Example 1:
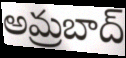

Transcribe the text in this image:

అమ్రబాద్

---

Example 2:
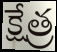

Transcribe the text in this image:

క్షేత్ర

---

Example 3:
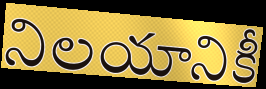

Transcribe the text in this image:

నిలయానికీ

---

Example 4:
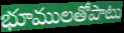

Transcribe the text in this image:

భూములతోపాటు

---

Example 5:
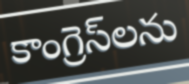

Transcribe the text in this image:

కాంగ్రెస్‌లను